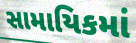
સામાયિકમાં